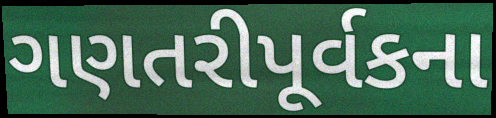
ગણતરીપૂર્વકના